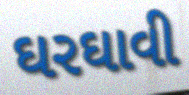
ઘરઘાવી